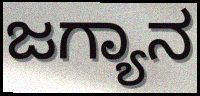
ಜಗ್ಯಾನ